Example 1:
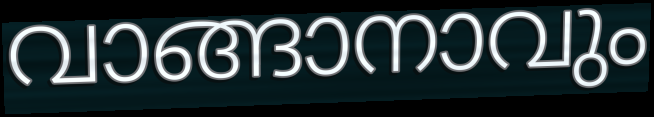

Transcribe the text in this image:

വാങ്ങാനാവും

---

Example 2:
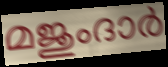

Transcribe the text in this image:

മജുംദാർ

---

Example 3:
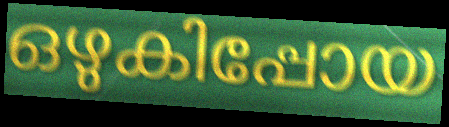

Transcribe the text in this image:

ഒഴുകിപ്പോയ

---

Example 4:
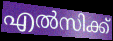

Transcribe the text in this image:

എൽസിക്ക്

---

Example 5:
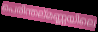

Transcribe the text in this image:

പെരിന്തല്മണ്ണയിലെ